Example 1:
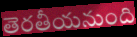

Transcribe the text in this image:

తెరతీయనుంది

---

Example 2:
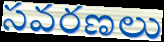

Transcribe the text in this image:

సవరణలు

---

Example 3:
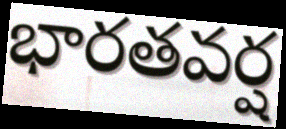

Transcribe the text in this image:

భారతవర్ష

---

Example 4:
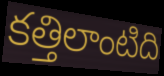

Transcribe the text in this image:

కత్తిలాంటిది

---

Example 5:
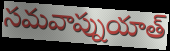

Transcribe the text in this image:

సమవాప్నుయాత్